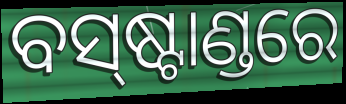
ବସ୍‍ଷ୍ଟାଣ୍ଡରେ